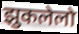
झुकलेलो